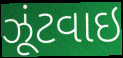
ઝૂંટવાઇ